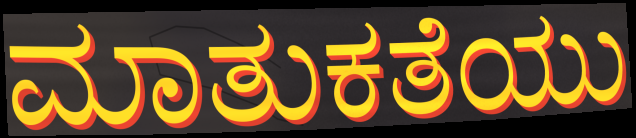
ಮಾತುಕತೆಯು